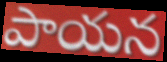
పాయన